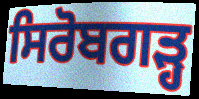
ਸਿਰੋਬਗੜ੍ਹ